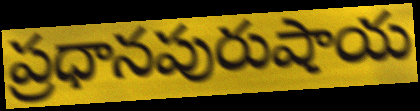
ప్రధానపురుషాయ